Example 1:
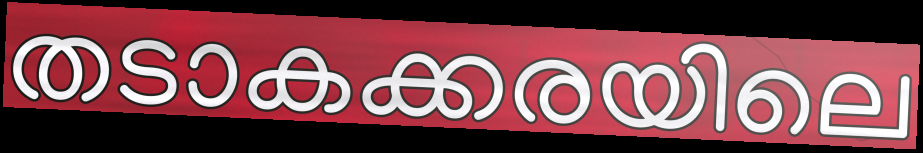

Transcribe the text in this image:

തടാകക്കരയിലെ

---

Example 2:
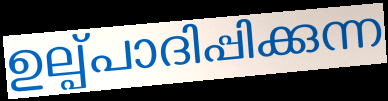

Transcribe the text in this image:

ഉല്പ്പാദിപ്പിക്കുന്ന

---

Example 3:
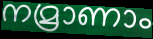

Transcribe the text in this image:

നമ്രാണാം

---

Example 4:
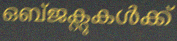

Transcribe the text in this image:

ഒബ്ജക്റ്റുകൾക്ക്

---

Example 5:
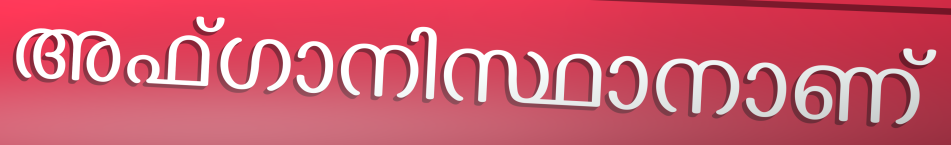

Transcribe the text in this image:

അഫ്ഗാനിസ്ഥാനാണ്